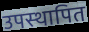
उपस्थापित